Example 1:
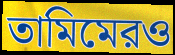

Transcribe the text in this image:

তামিমেরও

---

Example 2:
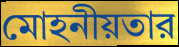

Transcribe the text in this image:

মোহনীয়তার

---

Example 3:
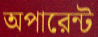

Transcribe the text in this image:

অপারেন্ট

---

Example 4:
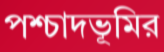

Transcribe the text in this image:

পশ্চাদভূমির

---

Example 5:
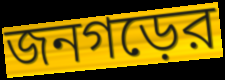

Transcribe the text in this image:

জনগড়ের